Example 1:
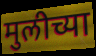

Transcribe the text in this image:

मुलीच्या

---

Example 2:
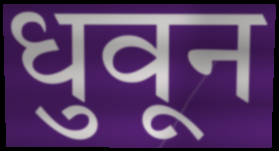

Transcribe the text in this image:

धुवून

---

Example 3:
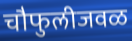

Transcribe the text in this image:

चौफुलीजवळ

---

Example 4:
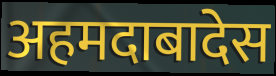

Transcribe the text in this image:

अहमदाबादेस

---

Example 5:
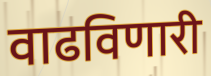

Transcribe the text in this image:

वाढविणारी